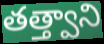
తత్త్వాని